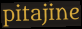
pitajine